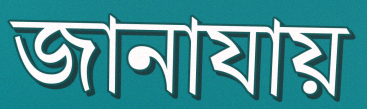
জানাযায়